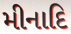
મીનાદિ